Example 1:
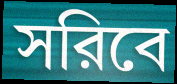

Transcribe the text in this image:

সরিবে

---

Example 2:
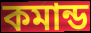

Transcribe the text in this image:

কমান্ড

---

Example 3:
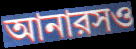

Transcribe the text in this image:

আনারসও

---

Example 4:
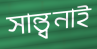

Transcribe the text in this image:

সান্ত্বনাই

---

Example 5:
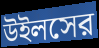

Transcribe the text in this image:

উইলসের